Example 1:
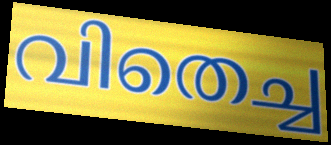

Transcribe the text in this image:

വിതെച്ച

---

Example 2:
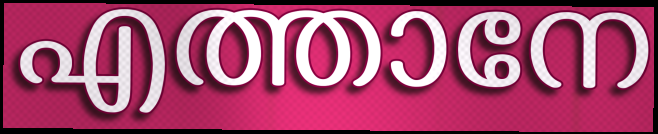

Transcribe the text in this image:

എത്താനേ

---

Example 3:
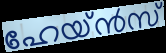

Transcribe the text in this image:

ഹേയ്ൻസ്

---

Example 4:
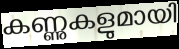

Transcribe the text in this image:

കണ്ണുകളുമായി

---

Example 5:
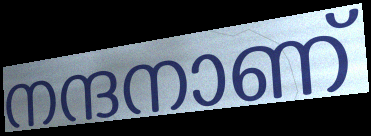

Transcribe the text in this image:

നന്ദനാണ്